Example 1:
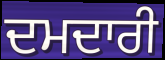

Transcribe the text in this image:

ਦਮਦਾਰੀ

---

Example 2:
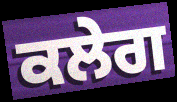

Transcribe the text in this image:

ਕਲੇਗ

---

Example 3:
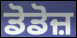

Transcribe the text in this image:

ਡੋਡੋਜ਼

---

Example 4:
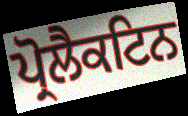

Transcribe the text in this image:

ਪ੍ਰੋਲੈਕਟਿਨ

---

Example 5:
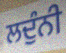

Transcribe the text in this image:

ਲਦੁੰਨੀ